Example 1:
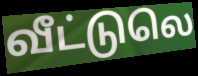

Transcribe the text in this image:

வீட்டுலெ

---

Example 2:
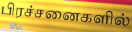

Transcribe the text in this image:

பிரச்சனைகளில்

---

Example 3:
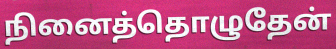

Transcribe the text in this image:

நினைத்தொழுதேன்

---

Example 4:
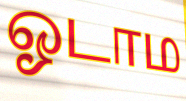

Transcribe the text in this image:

ஓடாம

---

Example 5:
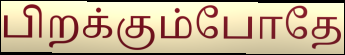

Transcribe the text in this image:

பிறக்கும்போதே